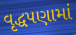
વૃદ્ધપણામાં